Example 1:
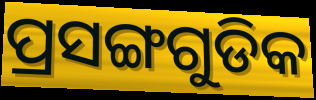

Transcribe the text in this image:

ପ୍ରସଙ୍ଗଗୁଡିକ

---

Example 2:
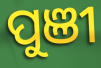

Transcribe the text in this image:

ପୁଞୀ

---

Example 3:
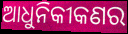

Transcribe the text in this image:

ଆଧୁନିକୀକଣର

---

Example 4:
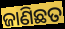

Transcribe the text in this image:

ଜାଣିଛତ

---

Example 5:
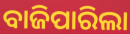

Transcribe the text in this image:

ବାଜିପାରିଲା